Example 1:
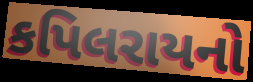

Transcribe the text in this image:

કપિલરાયનો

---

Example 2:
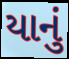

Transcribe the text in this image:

યાનું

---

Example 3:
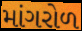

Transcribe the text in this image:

માંગરોળ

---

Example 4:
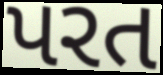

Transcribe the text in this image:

પરત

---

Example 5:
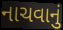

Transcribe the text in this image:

નાચવાનું